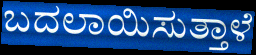
ಬದಲಾಯಿಸುತ್ತಾಳೆ